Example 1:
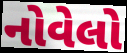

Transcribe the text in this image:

નોવેલો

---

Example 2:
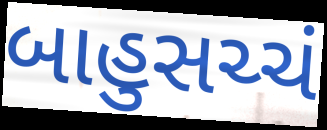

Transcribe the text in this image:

બાહુસચ્ચં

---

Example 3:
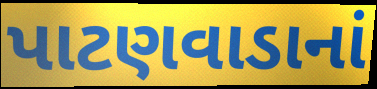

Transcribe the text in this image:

પાટણવાડાનાં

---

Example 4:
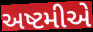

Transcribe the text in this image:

અષ્ટમીએ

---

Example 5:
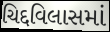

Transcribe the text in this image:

ચિદ્દવિલાસમાં